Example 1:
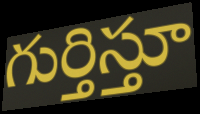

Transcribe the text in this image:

గుర్తిస్తూ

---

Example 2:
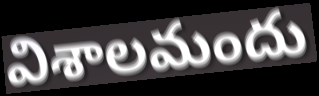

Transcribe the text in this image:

విశాలమందు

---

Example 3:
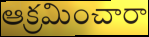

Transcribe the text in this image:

ఆక్రమించారా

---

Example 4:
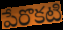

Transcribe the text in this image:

పేరొకటి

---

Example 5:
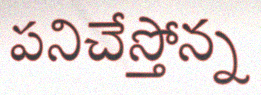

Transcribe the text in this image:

పనిచేస్తోన్న